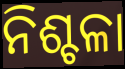
ନିଶ୍ଚଳା